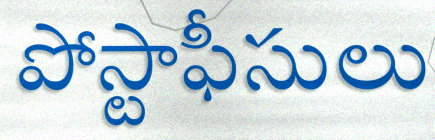
పోస్టాఫీసులు